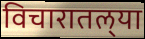
विचारातल्या